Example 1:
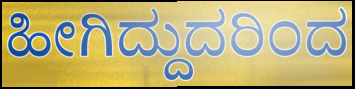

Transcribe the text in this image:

ಹೀಗಿದ್ದುದರಿಂದ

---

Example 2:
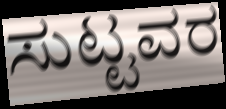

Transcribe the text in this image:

ಸುಟ್ಟವರ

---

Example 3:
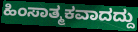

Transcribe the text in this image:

ಹಿಂಸಾತ್ಮಕವಾದದ್ದು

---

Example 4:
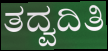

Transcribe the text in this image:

ತದ್ವದಿತಿ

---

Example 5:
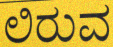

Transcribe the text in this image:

ಲಿರುವ